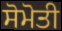
ਸੋਮੋਤੀ